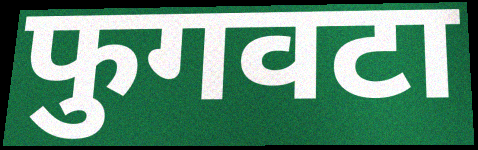
फुगवटा